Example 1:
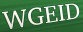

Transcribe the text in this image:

WGEID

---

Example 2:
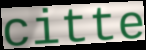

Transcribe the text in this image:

citte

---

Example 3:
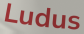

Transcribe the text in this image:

Ludus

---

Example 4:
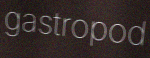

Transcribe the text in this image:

gastropod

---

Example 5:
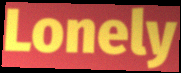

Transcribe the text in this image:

Lonely